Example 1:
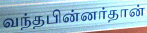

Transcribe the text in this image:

வந்தபின்னர்தான்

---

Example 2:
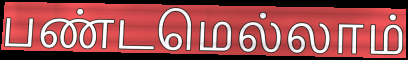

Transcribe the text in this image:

பண்டமெல்லாம்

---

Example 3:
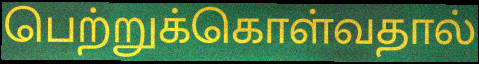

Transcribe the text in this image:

பெற்றுக்கொள்வதால்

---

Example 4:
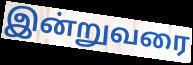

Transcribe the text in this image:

இன்றுவரை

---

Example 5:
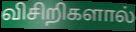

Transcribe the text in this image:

விசிறிகளால்